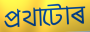
প্ৰথাটোৰ